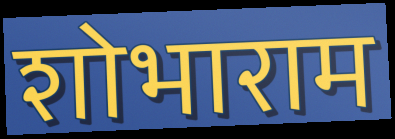
शोभाराम